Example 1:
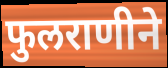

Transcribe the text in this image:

फुलराणीने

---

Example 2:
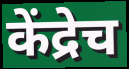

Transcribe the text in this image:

केंद्रेच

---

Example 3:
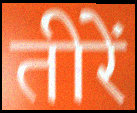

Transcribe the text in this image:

तीरें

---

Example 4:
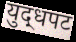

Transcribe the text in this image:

युद्धपट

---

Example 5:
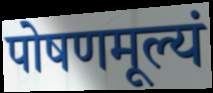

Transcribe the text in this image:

पोषणमूल्यं